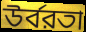
উর্বরতা